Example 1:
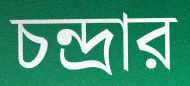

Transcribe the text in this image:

চন্দ্রার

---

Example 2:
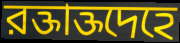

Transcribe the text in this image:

রক্তাক্তদেহে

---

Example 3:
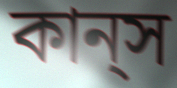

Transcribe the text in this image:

কান্‌স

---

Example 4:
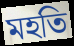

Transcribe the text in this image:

মহতি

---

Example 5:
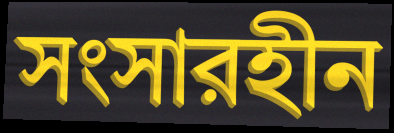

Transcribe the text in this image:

সংসারহীন